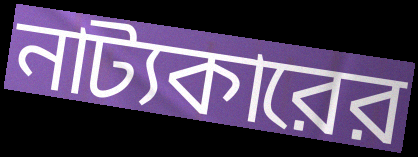
নাট্যকারের